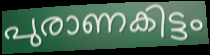
പുരാണകിട്ടം